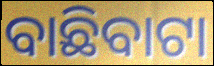
ବାଛିବାଟା